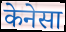
केनेसा